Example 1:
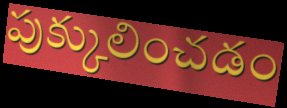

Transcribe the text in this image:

పుక్కులించడం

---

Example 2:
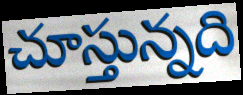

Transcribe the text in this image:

చూస్తున్నది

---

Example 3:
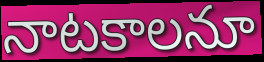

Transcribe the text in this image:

నాటకాలనూ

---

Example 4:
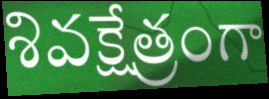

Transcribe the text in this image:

శివక్షేత్రంగా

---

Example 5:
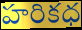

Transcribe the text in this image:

హరికధ